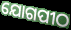
ଯୋଗପୀଠ